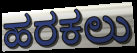
ಹರಕಲು